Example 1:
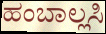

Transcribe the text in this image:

ಹಂಬಾಲ್ಲಸಿ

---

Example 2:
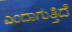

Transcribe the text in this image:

ಎಂದಾಗುತ್ತಿದೆ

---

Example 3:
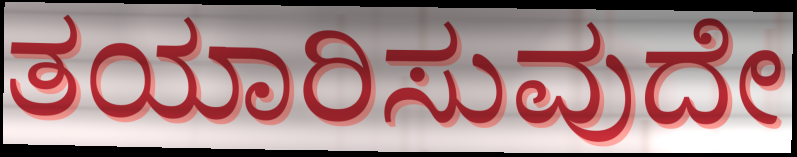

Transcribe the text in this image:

ತಯಾರಿಸುವುದೇ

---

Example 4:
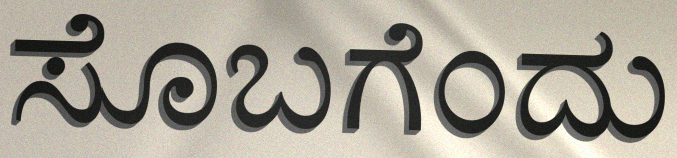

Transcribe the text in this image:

ಸೊಬಗೆಂದು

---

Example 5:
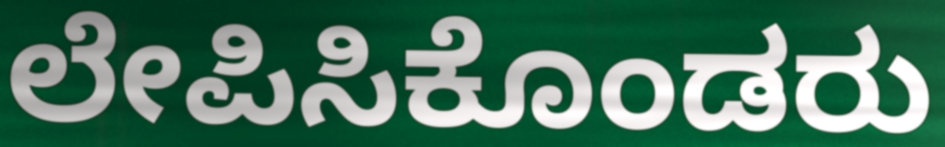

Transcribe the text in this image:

ಲೇಪಿಸಿಕೊಂಡರು